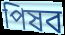
পিষব